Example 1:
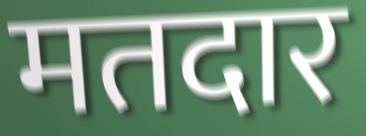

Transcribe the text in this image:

मतदार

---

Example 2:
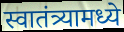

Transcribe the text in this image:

स्वातंत्र्यामध्ये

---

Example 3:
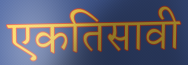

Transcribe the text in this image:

एकतिसावी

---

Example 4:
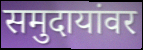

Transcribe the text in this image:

समुदायांवर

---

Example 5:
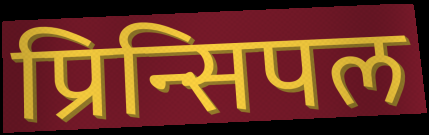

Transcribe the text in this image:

प्रिन्सिपल